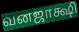
வனஜாக்ஷி